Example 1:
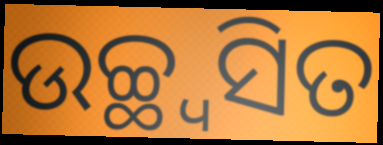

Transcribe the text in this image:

ଉଚ୍ଛ୍ୱସିତ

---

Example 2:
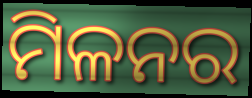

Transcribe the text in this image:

ମିଳନର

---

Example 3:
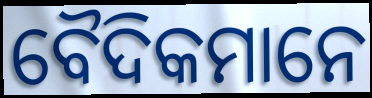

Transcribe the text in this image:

ବୈଦିକମାନେ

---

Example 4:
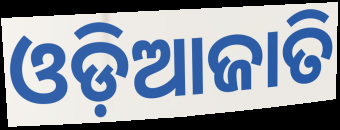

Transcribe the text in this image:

ଓଡ଼ିଆଜାତି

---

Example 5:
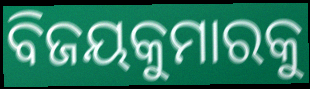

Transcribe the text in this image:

ବିଜୟକୁମାରକୁ